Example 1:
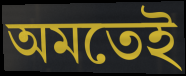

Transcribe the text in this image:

অমতেই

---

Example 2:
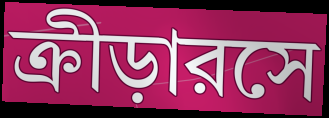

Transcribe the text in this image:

ক্রীড়ারসে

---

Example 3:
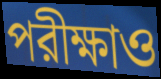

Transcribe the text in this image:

পরীক্ষাও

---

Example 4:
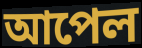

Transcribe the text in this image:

আপেল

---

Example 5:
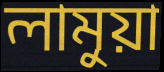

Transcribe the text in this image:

লামুয়া